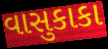
વાસુકાકા